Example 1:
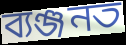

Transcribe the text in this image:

ব্যঞ্জনত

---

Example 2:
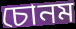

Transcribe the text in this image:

চোনম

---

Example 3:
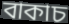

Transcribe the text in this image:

বাকাচ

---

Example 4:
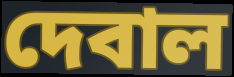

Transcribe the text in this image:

দেবাল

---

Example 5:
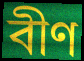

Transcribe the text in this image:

বীণ